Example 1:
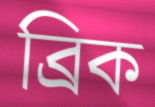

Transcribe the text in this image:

ব্রিক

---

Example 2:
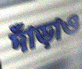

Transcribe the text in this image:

দাঁড়াও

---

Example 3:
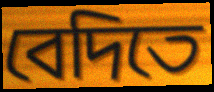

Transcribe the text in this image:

বেদিতে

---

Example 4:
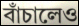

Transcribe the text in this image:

বাঁচালেও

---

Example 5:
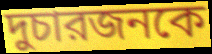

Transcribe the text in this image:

দুচারজনকে